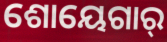
ଶୋୟେଗାର୍